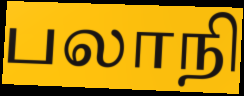
பலாநி